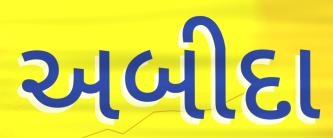
અબીદા